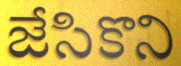
జేసికొని